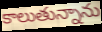
కాలుతున్నాను